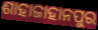
ଶାହାଜାହାନପୁର